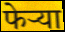
फेर्‍या